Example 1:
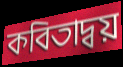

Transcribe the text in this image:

কবিতাদ্বয়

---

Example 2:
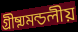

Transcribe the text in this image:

গ্রীষ্মমন্ডলীয়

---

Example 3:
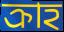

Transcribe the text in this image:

ক্রাহ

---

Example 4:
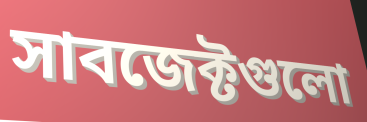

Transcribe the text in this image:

সাবজেক্টগুলো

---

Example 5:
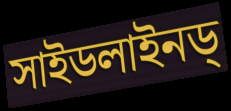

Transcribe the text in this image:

সাইডলাইনড্